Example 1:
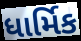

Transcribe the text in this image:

ધાર્મિક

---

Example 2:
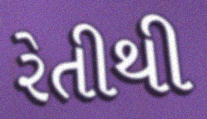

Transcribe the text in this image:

રેતીથી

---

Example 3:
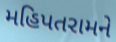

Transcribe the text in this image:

મહિપતરામને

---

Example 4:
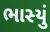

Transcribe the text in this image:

ભાસ્યું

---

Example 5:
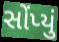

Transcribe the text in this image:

સોંપ્યું